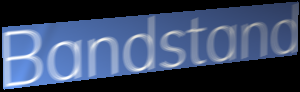
Bandstand